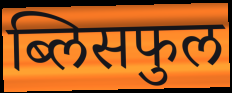
ब्लिसफुल